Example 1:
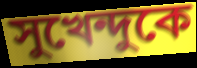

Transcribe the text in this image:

সুখেন্দুকে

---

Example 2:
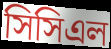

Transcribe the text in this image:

সিসিএল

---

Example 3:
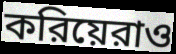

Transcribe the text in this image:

করিয়েরাও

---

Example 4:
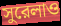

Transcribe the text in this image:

সুরেলাও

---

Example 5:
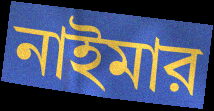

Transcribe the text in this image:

নাইমার